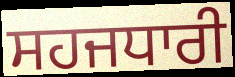
ਸਹਜਧਾਰੀ